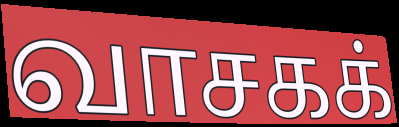
வாசகக்